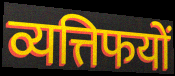
व्यत्तिफयों